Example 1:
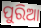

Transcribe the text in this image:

ପୁରିଆ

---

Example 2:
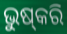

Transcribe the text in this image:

ଭୁଷ୍‍କରି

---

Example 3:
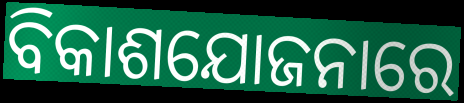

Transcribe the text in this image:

ବିକାଶଯୋଜନାରେ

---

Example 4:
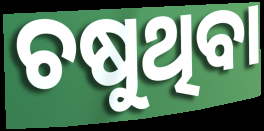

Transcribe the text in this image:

ଚଷୁଥିବା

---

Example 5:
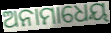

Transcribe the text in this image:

ଅନାମାଧେୟ